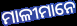
ମାଳୀମାନେ